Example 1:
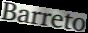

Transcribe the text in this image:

Barreto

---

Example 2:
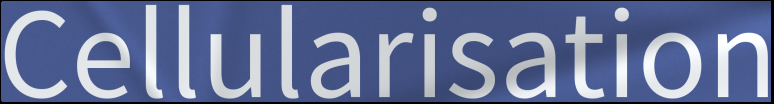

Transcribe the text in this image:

Cellularisation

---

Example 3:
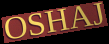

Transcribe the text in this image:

OSHAJ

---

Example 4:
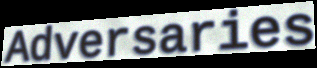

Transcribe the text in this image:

Adversaries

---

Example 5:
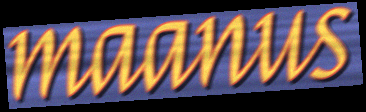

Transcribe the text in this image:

maanus